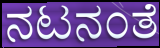
ನಟನಂತೆ